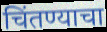
चिंतण्याचा